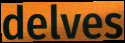
delves